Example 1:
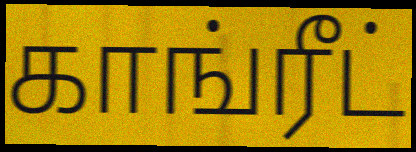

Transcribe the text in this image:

காங்ரீட்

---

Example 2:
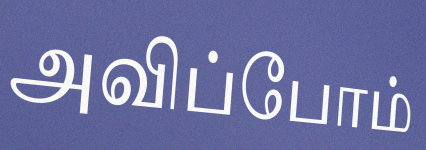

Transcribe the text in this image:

அவிப்போம்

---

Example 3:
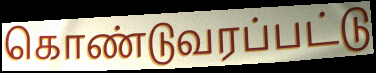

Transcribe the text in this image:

கொண்டுவரப்பட்டு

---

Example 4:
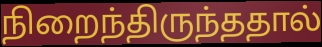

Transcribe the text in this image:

நிறைந்திருந்ததால்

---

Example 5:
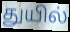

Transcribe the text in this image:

துயில்